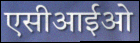
एसीआईओ